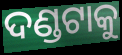
ଦଣ୍ଡଟାକୁ